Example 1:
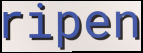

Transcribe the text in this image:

ripen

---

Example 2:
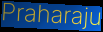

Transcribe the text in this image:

Praharaju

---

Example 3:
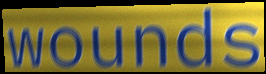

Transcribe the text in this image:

wounds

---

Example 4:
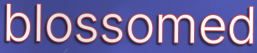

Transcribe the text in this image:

blossomed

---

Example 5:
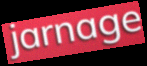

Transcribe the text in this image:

jarnage